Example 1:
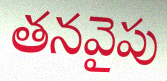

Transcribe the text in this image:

తనవైపు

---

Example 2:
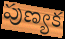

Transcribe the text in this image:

పుణ్యక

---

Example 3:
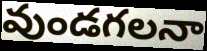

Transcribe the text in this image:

వుండగలనా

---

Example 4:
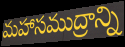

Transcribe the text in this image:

మహాసముద్రాన్ని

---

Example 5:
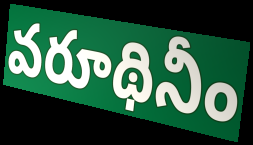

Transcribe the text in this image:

వరూథినీం